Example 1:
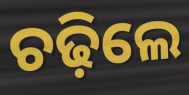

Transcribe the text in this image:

ଚଢ଼ିଲେ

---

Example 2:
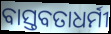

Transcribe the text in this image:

ବାସ୍ତବତାଧର୍ମୀ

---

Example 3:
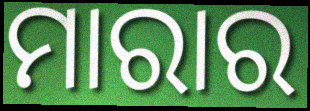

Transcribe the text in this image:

ମାରାର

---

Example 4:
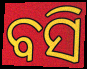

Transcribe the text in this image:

ବସି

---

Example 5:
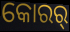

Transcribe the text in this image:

କୋରର୍